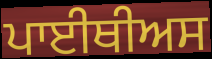
ਪਾਈਥੀਅਸ